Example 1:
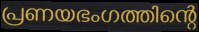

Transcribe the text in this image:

പ്രണയഭംഗത്തിന്റെ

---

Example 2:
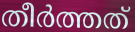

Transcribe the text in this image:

തീർത്തത്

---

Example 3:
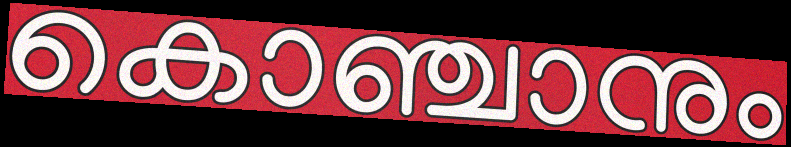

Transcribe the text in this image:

കൊഞ്ചാനും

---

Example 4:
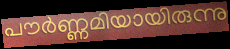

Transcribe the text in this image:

പൗർണ്ണമിയായിരുന്നു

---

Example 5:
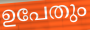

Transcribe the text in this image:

ഉപേതും